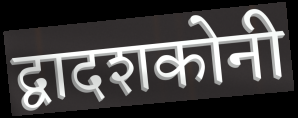
द्वादशकोनी